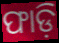
ଫାଡ଼ି